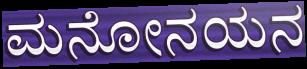
ಮನೋನಯನ